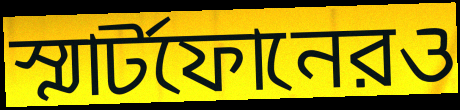
স্মার্টফোনেরও